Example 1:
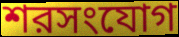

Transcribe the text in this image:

শরসংযোগ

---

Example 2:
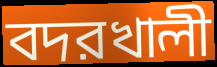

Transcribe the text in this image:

বদরখালী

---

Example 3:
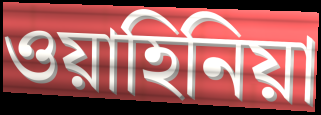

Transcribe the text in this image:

ওয়াহিনিয়া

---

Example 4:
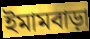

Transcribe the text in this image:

ইমামবাড়া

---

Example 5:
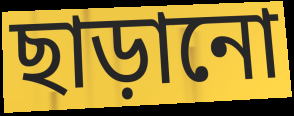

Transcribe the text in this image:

ছাড়ানো